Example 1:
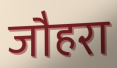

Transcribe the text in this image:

जौहरा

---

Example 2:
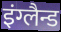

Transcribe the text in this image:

इंग्लैन्ड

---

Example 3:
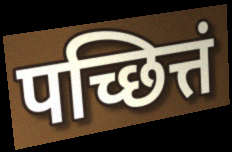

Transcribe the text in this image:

पच्छित्तं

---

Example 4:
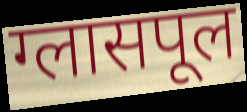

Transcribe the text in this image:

ग्लासपूल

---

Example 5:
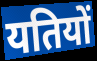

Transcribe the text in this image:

यतियों